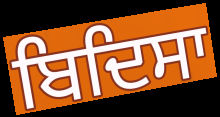
ਬਿਦਿਸਾ